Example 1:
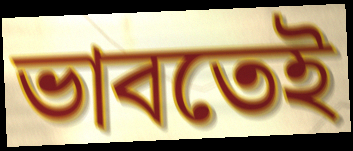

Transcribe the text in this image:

ভাবতেই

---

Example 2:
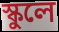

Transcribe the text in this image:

স্কুলে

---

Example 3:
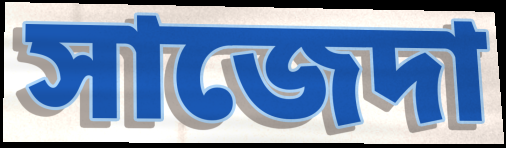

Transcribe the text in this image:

সাজেদা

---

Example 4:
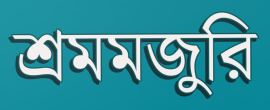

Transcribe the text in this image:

শ্রমমজুরি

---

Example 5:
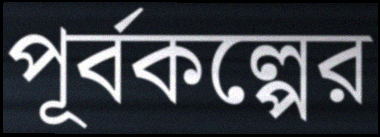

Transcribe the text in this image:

পূর্বকল্পের